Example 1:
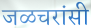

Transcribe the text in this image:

जळचरांसी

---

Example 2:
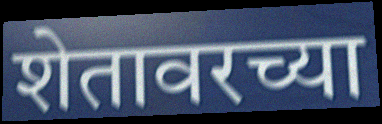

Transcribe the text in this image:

शेतावरच्या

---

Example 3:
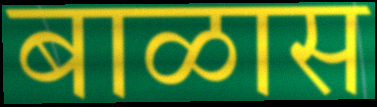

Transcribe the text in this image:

बाळास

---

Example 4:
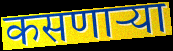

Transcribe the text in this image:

कसणाऱ्या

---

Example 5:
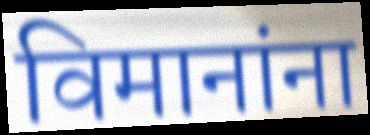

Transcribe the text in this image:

विमानांना